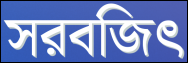
সরবজিৎ